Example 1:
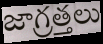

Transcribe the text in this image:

జాగ్రత్తలు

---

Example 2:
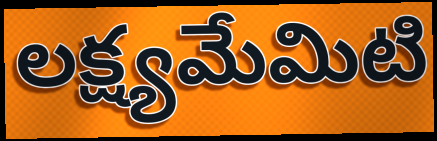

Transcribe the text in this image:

లక్ష్యమేమిటి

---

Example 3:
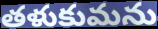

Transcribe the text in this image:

తళుకుమను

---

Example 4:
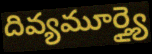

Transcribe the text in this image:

దివ్యమూర్త్యై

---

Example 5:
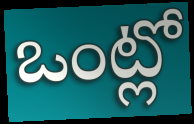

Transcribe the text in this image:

ఒంట్లో